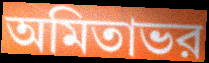
অমিতাভর